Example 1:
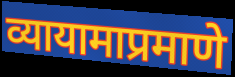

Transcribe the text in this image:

व्यायामाप्रमाणे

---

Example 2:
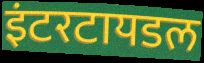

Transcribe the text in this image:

इंटरटायडल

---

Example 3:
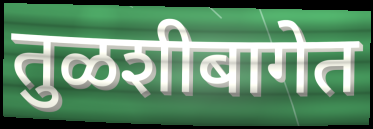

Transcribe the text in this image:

तुळशीबागेत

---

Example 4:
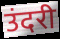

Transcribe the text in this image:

उंदरी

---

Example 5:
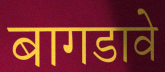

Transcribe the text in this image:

बागडावे